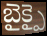
బైక్పై